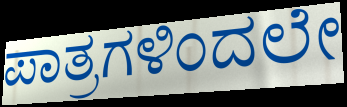
ಪಾತ್ರಗಳಿಂದಲೇ